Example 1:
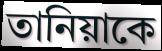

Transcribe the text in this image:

তানিয়াকে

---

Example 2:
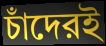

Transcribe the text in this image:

চাঁদেরই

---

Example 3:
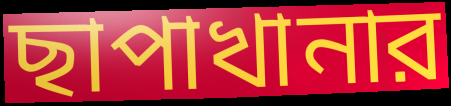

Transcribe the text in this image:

ছাপাখানার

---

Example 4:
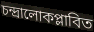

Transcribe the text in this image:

চন্দ্রালোকপ্লাবিত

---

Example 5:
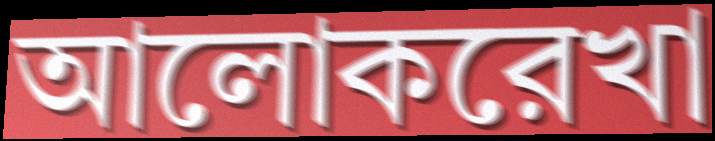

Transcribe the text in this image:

আলোকরেখা